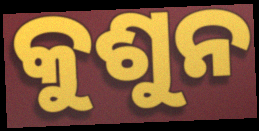
କୁଶୁନ